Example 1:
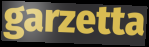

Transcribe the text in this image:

garzetta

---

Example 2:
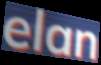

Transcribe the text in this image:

elan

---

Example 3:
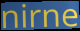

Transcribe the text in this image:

nirne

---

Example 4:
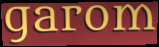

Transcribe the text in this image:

garom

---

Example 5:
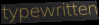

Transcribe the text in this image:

typewritten